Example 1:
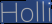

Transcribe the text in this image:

Holli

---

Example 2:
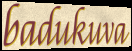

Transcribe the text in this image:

badukuva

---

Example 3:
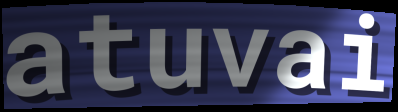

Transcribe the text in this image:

atuvai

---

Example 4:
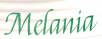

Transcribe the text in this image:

Melania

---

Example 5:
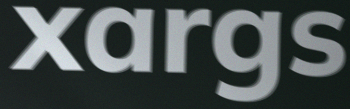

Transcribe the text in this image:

xargs